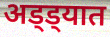
अड्ड्यात